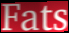
Fats